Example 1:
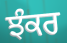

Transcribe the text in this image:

ਝੰਕਰ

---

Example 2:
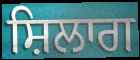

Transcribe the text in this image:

ਸ਼ਿਲਾਗ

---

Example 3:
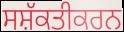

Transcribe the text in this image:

ਸਸ਼ੱਕਤੀਕਰਨ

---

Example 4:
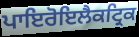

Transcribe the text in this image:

ਪਾਇਰੋਇਲੈਕਟ੍ਰਿਕ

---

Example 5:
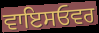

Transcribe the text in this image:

ਵਾਇਸਓਵਰ